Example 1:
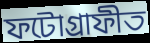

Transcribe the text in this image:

ফটোগ্ৰাফীত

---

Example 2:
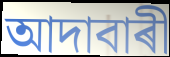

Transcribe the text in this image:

আদাবাৰী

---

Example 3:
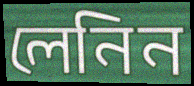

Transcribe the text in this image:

লেনিন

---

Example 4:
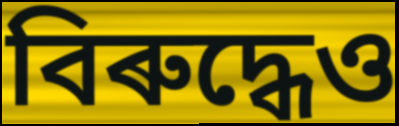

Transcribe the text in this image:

বিৰুদ্ধেও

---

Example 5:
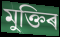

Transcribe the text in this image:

মুক্তিৰ